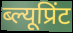
ब्ल्यूप्रिंट